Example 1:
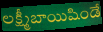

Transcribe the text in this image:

లక్ష్మీబాయిషిండే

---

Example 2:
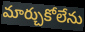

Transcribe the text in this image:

మార్చుకోలేను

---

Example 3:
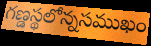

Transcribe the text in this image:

గణ్డస్థలోన్నసముఖం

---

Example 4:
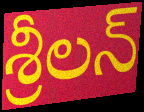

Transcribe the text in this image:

శ్రీలన్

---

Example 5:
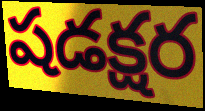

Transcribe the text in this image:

షడక్షర